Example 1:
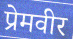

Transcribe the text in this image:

प्रेमवीर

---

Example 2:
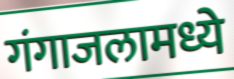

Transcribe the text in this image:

गंगाजलामध्ये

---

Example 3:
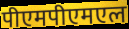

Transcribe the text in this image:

पीएमपीएमएल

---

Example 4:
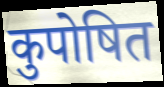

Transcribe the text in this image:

कुपोषित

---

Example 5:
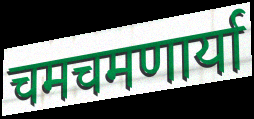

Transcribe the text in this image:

चमचमणार्या